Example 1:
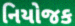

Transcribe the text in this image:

નિયોજક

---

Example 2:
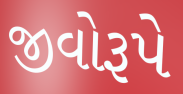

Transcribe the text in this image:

જીવોરૂપે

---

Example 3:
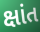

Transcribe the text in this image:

ક્ષાંત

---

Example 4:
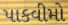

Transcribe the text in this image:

પાકવીમો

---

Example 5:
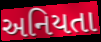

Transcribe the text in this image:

અનિયતા